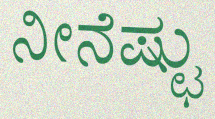
ನೀನೆಷ್ಟು